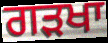
ਗੜਖਾ